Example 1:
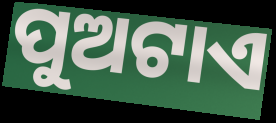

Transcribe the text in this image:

ପୁଅଟାଏ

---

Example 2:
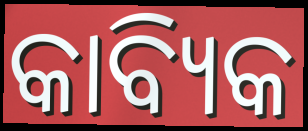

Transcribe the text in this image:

କାବ୍ୟିକ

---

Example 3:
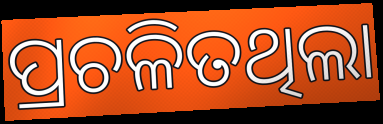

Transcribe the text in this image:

ପ୍ରଚଳିତଥିଲା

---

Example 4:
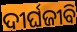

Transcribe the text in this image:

ଦୀର୍ଘଜୀବି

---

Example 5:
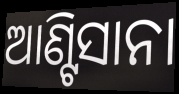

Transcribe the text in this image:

ଆଣ୍ଟିସାନା